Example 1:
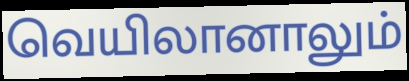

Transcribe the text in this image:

வெயிலானாலும்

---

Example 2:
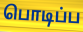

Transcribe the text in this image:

பொடிப்ப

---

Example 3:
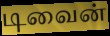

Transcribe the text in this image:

டிவைன்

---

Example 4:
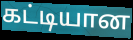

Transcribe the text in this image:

கட்டியான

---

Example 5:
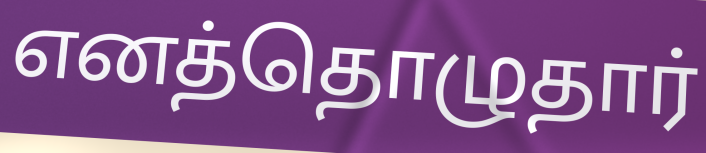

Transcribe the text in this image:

எனத்தொழுதார்